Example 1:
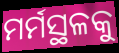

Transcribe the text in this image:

ମର୍ମସ୍ଥଳକୁ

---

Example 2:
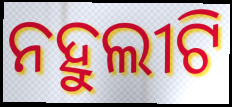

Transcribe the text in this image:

ନହୁଲୀଟି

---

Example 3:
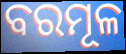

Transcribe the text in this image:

ବରମୂଳ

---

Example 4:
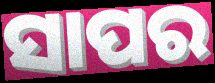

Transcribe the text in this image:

ସାପର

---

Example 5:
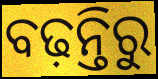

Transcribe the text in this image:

ବଢ଼ନ୍ତିରୁ